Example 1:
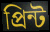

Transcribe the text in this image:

প্রিন্ট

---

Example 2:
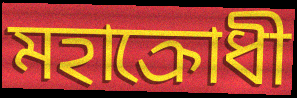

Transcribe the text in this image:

মহাক্রোধী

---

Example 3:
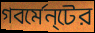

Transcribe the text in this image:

গবর্মেন্‌টের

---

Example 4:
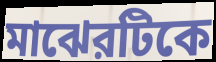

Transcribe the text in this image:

মাঝেরটিকে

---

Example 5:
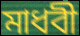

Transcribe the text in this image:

মাধবী